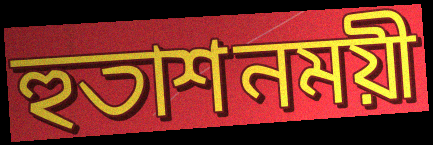
হুতাশনময়ী